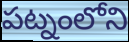
పట్నంలోని